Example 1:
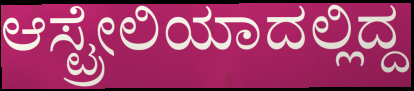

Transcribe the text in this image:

ಆಸ್ಟ್ರೇಲಿಯಾದಲ್ಲಿದ್ದ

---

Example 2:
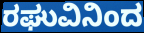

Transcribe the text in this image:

ರಘುವಿನಿಂದ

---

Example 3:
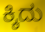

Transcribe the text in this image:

ಕ್ಕಿದು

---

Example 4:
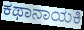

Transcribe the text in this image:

ಕಥಾನಾಯಕಿ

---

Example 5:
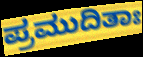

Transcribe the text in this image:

ಪ್ರಮುದಿತಾಃ